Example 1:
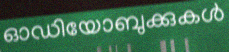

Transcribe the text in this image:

ഓഡിയോബുക്കുകൾ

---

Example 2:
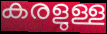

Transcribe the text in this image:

കരളുള്ള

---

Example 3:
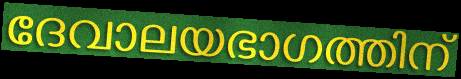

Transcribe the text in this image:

ദേവാലയഭാഗത്തിന്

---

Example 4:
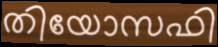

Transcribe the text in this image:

തിയോസഫി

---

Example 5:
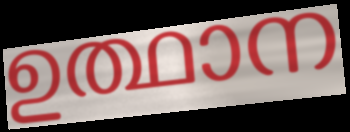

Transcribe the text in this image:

ഉത്ഥാന